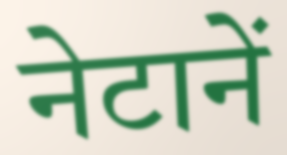
नेटानें